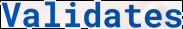
Validates